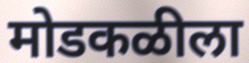
मोडकळीला